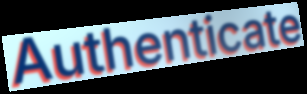
Authenticate